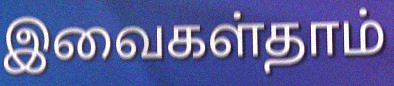
இவைகள்தாம்